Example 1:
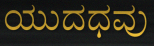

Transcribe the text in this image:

ಯುದಧವು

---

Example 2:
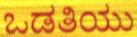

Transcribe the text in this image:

ಒಡತಿಯು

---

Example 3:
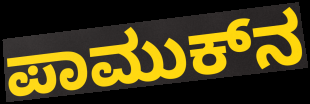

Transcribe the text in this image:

ಪಾಮುಕ್‍ನ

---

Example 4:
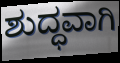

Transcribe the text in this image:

ಶುದ್ಧವಾಗಿ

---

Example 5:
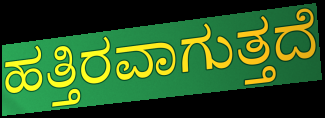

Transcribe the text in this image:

ಹತ್ತಿರವಾಗುತ್ತದೆ